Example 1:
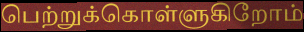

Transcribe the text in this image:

பெற்றுக்கொள்ளுகிறோம்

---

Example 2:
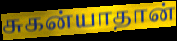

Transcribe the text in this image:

சுகன்யாதான்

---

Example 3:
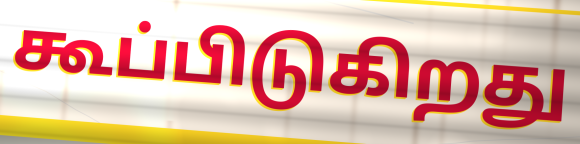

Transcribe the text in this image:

கூப்பிடுகிறது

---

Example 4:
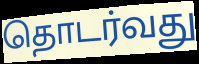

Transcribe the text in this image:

தொடர்வது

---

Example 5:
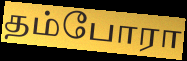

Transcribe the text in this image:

தம்போரா